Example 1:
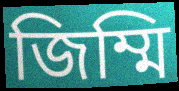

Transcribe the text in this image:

জিম্মি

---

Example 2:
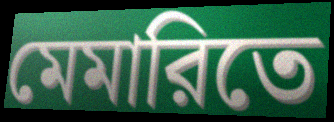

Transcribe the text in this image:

মেমারিতে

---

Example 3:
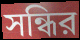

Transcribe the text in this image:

সন্ধির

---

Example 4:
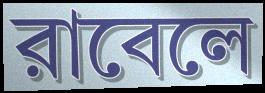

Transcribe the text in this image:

রাবেলে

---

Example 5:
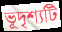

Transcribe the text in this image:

ভূদৃশ্যটি